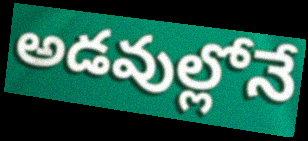
అడవుల్లోనే